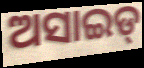
ଅସାଇଡ୍